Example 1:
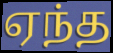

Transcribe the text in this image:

ஏந்த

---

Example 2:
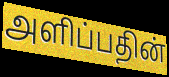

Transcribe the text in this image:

அளிப்பதின்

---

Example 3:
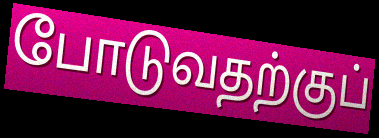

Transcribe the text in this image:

போடுவதற்குப்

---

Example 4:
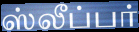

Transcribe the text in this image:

ஸ்லீப்பர்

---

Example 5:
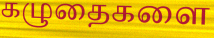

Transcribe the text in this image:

கழுதைகளை